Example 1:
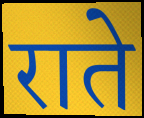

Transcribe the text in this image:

राते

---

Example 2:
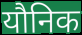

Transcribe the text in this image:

यौनिक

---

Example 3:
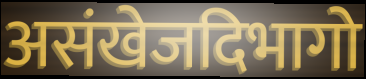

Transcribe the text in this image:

असंखेजदिभागो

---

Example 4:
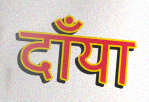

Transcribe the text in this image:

दाँया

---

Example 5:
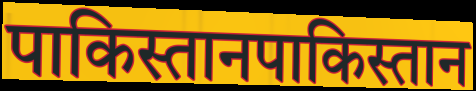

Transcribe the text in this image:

पाकिस्तानपाकिस्तान